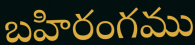
బహిరంగము